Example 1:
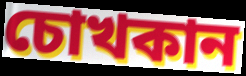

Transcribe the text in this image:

চোখকান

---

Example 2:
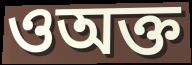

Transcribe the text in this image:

ওঅক্ত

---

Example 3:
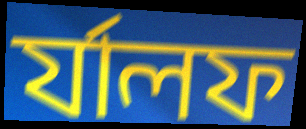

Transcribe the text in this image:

র্যালফ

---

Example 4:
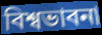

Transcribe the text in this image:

বিশ্বভাবনা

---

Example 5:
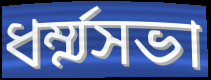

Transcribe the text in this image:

ধর্ম্মসভা